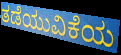
ತಡೆಯುವಿಕೆಯ